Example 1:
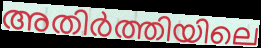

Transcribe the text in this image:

അതിർത്തിയിലെ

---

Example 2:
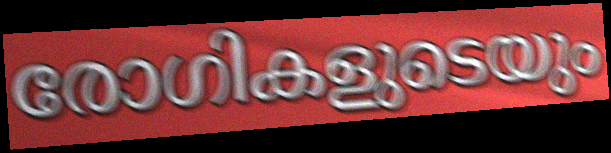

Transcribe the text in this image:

രോഗികളുടെയും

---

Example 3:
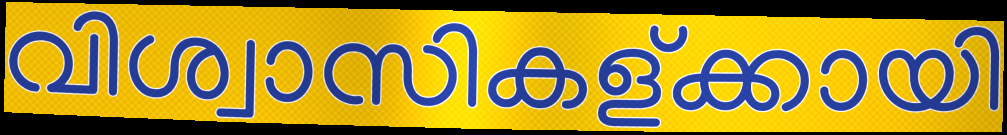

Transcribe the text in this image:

വിശ്വാസികള്ക്കായി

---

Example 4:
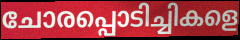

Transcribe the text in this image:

ചോരപ്പൊടിച്ചികളെ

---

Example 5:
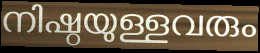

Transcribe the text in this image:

നിഷ്ഠയുള്ളവരും